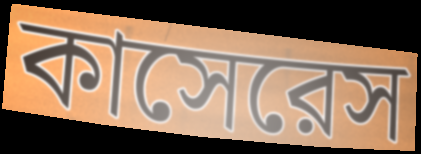
কাসেরেস